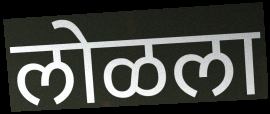
लोळला